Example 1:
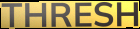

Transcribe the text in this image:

THRESH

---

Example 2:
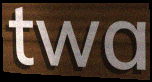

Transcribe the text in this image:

twa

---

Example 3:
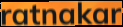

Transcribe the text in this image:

ratnakar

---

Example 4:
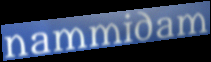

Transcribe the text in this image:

nammidam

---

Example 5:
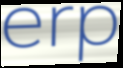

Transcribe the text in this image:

erp